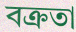
বক্ৰতা